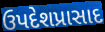
ઉપદેશપ્રાસાદ